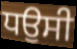
ਧਉਸੀ